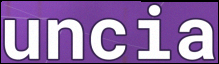
uncia